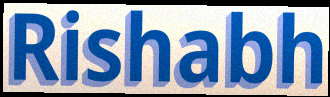
Rishabh